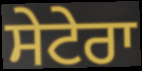
ਸੇਟੇਰਾ